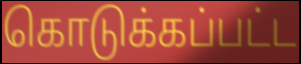
கொடுக்கப்பட்ட